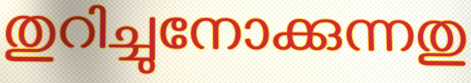
തുറിച്ചുനോക്കുന്നതു